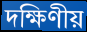
দক্ষিণীয়